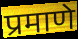
प्रमाणे